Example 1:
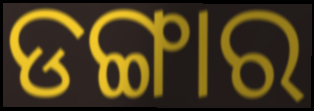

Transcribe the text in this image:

ଡଙ୍ଗାର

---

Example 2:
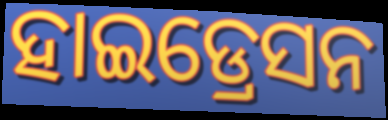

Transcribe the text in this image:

ହାଇଡ୍ରେସନ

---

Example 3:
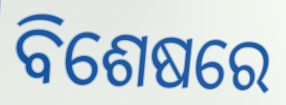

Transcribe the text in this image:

ବିଶେଷରେ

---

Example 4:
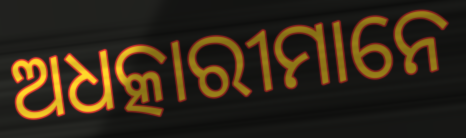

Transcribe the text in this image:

ଅଧତ୍କାରୀମାନେ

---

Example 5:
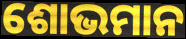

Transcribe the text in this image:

ଶୋଭମାନ